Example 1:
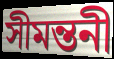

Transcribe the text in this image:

সীমন্তনী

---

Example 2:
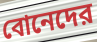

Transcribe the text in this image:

বোনেদের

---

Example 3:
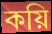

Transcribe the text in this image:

কয়ি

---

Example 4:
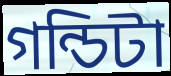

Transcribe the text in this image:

গন্ডিটা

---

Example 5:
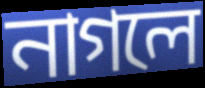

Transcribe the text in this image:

নাগলে